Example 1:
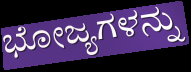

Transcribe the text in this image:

ಭೋಜ್ಯಗಳನ್ನು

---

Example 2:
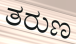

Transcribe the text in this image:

ತರುಣ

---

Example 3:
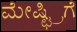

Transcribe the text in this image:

ಮೇಷ್ಟ್ರಿಗೆ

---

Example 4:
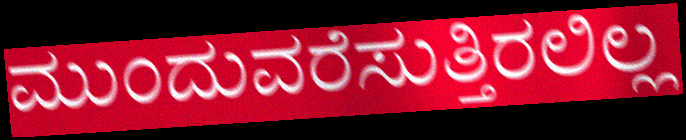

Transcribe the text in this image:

ಮುಂದುವರೆಸುತ್ತಿರಲಿಲ್ಲ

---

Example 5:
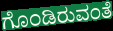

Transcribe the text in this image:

ಗೊಂಡಿರುವಂತೆ